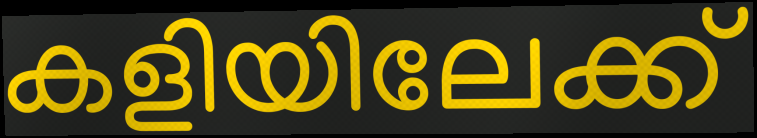
കളിയിലേക്ക്